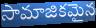
సామాజికమైన